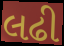
લઢી